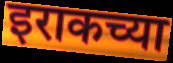
इराकच्या